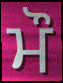
ਮੌ